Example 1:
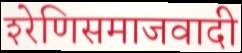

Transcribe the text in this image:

श्रेणिसमाजवादी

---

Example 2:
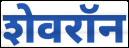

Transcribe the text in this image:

शेवरॉन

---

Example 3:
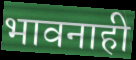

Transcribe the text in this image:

भावनाही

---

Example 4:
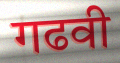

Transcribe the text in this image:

गढवी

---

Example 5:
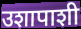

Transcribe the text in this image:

उशापाशी